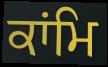
ਕਾਂਮਿ